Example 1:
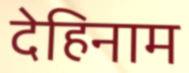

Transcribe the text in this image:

देहिनाम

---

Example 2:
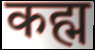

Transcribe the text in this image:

कह्म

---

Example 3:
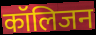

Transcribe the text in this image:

कॉलिजन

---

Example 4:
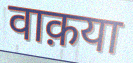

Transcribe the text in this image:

वाक़या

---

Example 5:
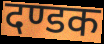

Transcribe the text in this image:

दण्डक